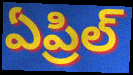
ఏప్రిల్